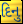
દિનુ